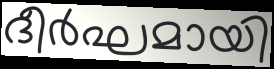
ദീർഘമായി